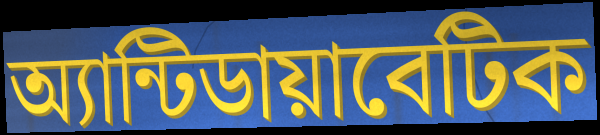
অ্যান্টিডায়াবেটিক